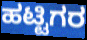
ಹಟ್ಟಿಗರ